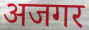
अजगर